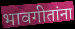
भावगीतांना